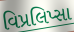
વિપ્રલિપ્સા